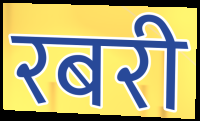
रबरी